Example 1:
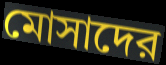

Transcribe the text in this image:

মোসাদের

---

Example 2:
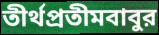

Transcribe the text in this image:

তীর্থপ্রতীমবাবুর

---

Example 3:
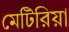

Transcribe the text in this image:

মেটিরিয়া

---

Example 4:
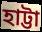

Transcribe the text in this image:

হাট্টা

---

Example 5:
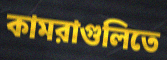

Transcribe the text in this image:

কামরাগুলিতে